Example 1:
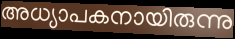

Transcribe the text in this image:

അധ്യാപകനായിരുന്നു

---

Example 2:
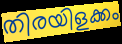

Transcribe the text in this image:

തിരയിളക്കം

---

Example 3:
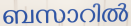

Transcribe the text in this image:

ബസാറിൽ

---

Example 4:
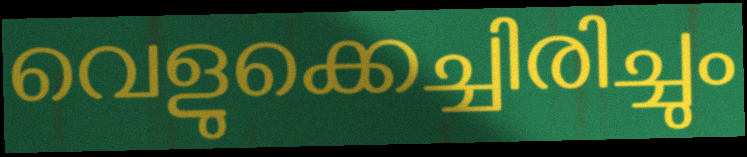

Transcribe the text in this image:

വെളുക്കെച്ചിരിച്ചും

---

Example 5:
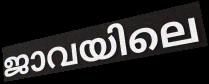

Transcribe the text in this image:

ജാവയിലെ